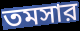
তমসার